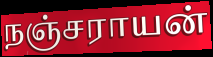
நஞ்சராயன்